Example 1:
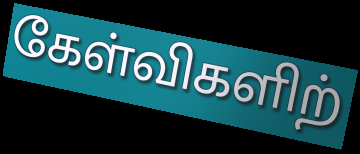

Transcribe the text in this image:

கேள்விகளிற்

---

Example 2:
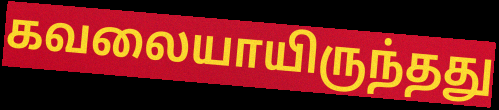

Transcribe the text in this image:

கவலையாயிருந்தது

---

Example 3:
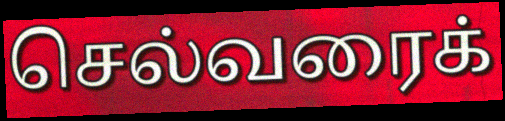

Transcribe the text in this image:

செல்வரைக்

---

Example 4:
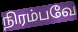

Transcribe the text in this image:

நிரம்பவே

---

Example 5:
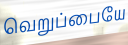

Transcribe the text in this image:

வெறுப்பையே